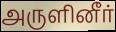
அருளினீர்